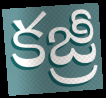
కజ్రీ